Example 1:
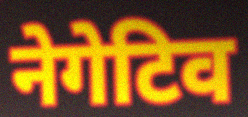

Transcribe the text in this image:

नेगेटिव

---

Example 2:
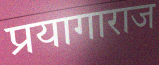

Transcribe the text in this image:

प्रयागाराज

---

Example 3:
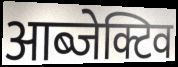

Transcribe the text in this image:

आब्जेक्टिव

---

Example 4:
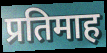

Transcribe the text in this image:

प्रतिमाह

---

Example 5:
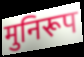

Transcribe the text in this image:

मुनिरूप